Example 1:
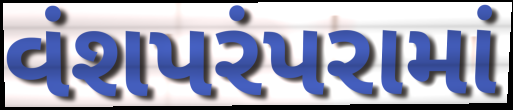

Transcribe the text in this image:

વંશપરંપરામાં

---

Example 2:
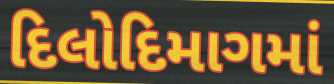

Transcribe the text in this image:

દિલોદિમાગમાં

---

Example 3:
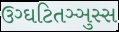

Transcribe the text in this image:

ઉગ્ઘટિતઞ્ઞુસ્સ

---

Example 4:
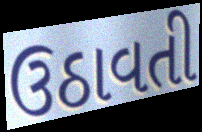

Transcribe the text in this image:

ઉઠાવતી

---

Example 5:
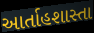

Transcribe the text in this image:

આર્તાહશાસ્તા